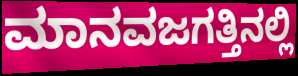
ಮಾನವಜಗತ್ತಿನಲ್ಲಿ